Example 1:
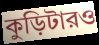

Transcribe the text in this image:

কুড়িটারও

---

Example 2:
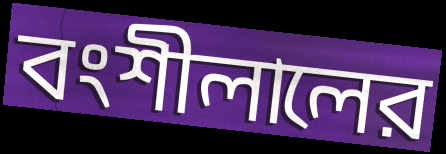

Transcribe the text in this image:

বংশীলালের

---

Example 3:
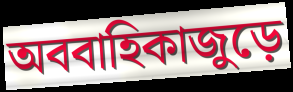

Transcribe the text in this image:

অববাহিকাজুড়ে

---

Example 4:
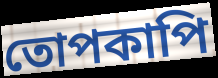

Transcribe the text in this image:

তোপকাপি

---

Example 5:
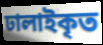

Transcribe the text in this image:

ঢালাইকৃত